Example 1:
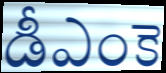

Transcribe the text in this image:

డీఎంకె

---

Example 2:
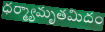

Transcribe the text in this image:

ధర్మ్యామృతమిదం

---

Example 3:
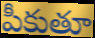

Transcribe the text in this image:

పీకుతూ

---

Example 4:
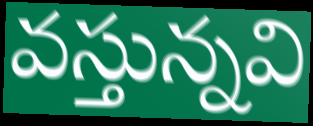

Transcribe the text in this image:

వస్తున్నవి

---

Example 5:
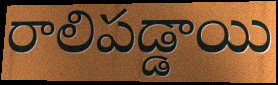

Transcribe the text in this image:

రాలిపడ్డాయి